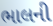
ભાલની